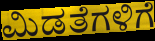
ಮಿಡತೆಗಳಿಗೆ